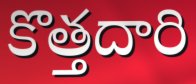
కొత్తదారి